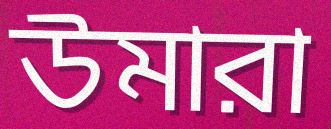
উমারা